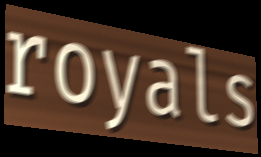
royals